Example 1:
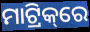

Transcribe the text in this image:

ମାଟ୍ରିକ୍‌ରେ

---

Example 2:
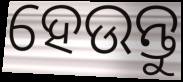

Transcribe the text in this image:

ହେଉନ୍ତୁ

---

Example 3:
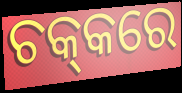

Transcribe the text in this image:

ଚକ୍‌କରେ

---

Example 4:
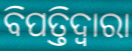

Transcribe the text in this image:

ବିପତ୍ତିଦ୍ୱାରା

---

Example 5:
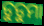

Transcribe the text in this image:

ଡୁଡୁମା